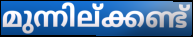
മുന്നില്ക്കണ്ട്